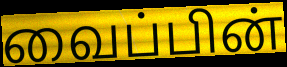
வைப்பின்